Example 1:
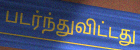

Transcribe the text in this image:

படர்ந்துவிட்டது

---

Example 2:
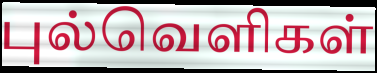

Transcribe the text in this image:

புல்வெளிகள்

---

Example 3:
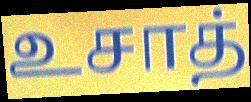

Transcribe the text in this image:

உசாத்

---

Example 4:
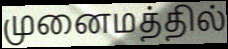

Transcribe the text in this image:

முனைமத்தில்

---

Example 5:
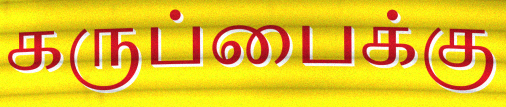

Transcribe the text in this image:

கருப்பைக்கு